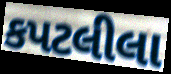
કપટલીલા